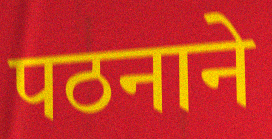
पठनाने